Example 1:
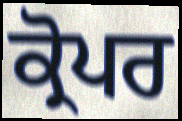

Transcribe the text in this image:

ਕ੍ਰੋਪਰ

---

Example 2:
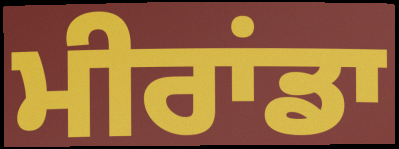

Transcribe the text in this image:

ਮੀਰਾਂਡਾ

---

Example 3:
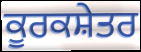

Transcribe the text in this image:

ਕੂਰਕਸ਼ੇਤਰ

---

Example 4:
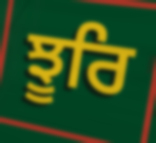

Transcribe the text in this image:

ਝੂਰਿ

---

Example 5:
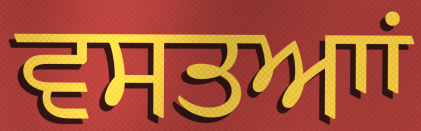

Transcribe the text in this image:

ਵਸਤਆਾਂ